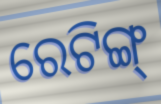
ରେଟିଙ୍ଗ୍